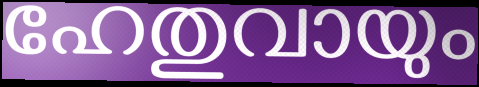
ഹേതുവായും